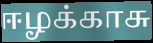
ஈழக்காசு